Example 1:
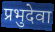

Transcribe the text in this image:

प्रभुदेवा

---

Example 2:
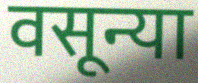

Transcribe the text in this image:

वसून्या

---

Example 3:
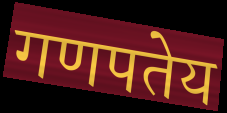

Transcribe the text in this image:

गणपतेय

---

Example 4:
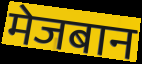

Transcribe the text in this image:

मेजबान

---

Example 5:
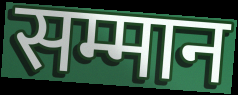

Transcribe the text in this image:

सम्मान